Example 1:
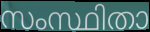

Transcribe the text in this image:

സംസ്ഥിതാ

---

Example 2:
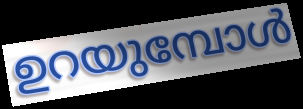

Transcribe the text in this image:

ഉറയുമ്പോൾ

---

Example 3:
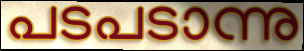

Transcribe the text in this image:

പടപടാന്നു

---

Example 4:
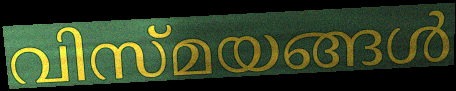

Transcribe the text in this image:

വിസ്മയങ്ങൾ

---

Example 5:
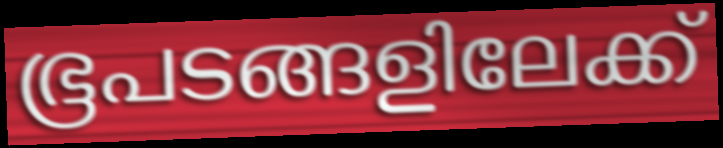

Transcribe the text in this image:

ഭൂപടങ്ങളിലേക്ക്